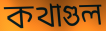
কথাগুল